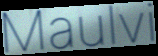
Maulvi